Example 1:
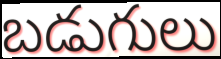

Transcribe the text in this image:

బడుగులు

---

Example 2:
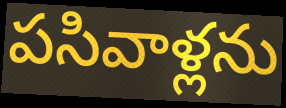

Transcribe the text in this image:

పసివాళ్లను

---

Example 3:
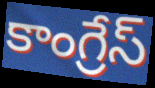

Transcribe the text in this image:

కాంగ్రేస్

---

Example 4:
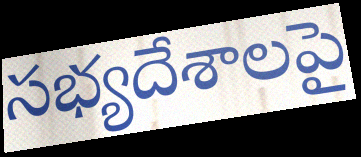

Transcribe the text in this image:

సభ్యదేశాలపై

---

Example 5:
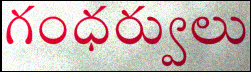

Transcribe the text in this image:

గంధర్వులు